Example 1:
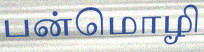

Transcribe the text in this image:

பன்மொழி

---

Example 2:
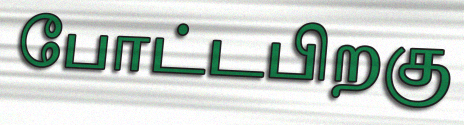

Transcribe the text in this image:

போட்டபிறகு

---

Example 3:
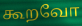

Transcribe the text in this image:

கூறவோ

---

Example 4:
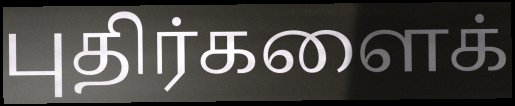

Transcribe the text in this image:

புதிர்களைக்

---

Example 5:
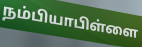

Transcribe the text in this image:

நம்பியாபிள்ளை